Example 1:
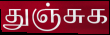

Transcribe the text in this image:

துஞ்சுக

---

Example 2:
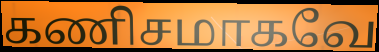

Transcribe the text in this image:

கணிசமாகவே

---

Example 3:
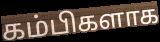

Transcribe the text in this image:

கம்பிகளாக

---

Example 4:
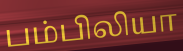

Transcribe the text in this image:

பம்பிலியா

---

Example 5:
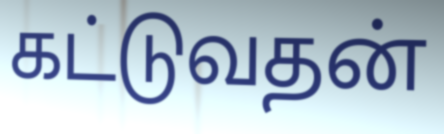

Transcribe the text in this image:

கட்டுவதன்